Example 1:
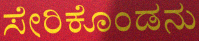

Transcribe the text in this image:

ಸೇರಿಕೊಂಡನು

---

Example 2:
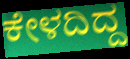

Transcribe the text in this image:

ಕೇಳದಿದ್ದ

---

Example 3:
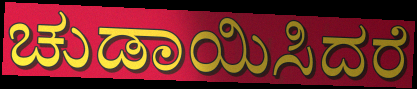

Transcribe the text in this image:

ಚುಡಾಯಿಸಿದರೆ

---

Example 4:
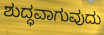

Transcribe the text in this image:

ಶುದ್ಧವಾಗುವುದು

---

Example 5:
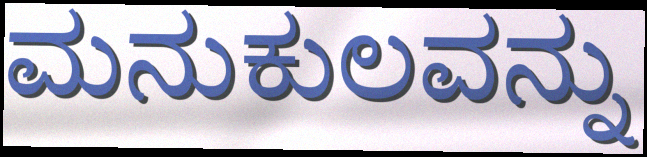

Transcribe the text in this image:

ಮನುಕುಲವನ್ನು